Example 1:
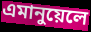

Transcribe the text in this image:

এমানুয়েলে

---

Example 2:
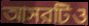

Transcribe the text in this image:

আসরটিও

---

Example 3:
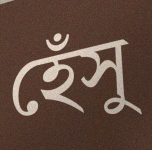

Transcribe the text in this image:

হেঁসু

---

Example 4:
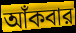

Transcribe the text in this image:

আঁকবার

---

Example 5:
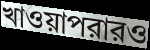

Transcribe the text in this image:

খাওয়াপরারও